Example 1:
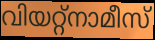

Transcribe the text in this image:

വിയറ്റ്നാമീസ്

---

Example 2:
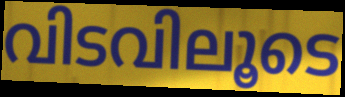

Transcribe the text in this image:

വിടവിലൂടെ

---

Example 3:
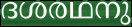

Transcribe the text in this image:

ദശരഥനു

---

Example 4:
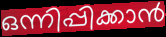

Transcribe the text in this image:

ഒന്നിപ്പിക്കാൻ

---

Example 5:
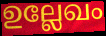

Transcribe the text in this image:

ഉല്ലേഖം